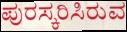
ಪುರಸ್ಕರಿಸಿರುವ